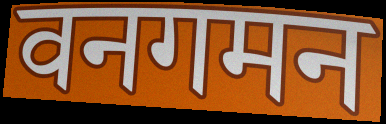
वनगमन